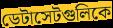
ডেটাসেটগুলিকে